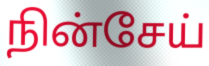
நின்சேய்